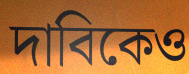
দাবিকেও